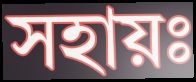
সহায়ঃ